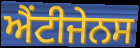
ਐਂਟੀਜੇਨਸ